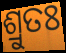
ଶ୍ରୁତଃ